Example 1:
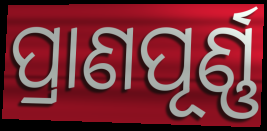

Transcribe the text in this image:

ପ୍ରାଣପୂର୍ଣ୍ଣ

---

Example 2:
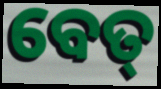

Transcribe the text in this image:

ବେତ୍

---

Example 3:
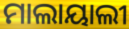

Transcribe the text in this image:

ମାଲାୟାଲୀ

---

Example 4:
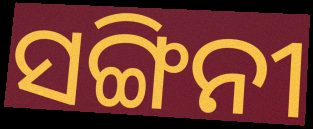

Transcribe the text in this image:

ସଙ୍ଗିନୀ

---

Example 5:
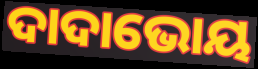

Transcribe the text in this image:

ଦାଦାଭୋୟ